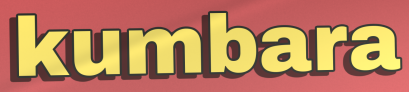
kumbara